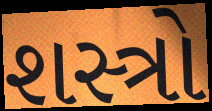
શસ્‍ત્રો